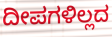
ದೀಪಗಳಿಲ್ಲದ